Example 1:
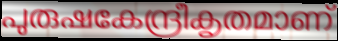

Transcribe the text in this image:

പുരുഷകേന്ദ്രീകൃതമാണ്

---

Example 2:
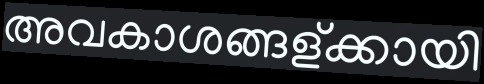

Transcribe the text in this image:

അവകാശങ്ങള്ക്കായി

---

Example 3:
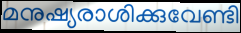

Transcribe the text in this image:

മനുഷ്യരാശിക്കുവേണ്ടി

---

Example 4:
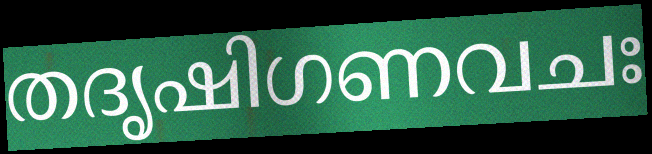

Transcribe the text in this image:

തദൃഷിഗണവചഃ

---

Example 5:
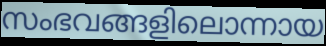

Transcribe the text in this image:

സംഭവങ്ങളിലൊന്നായ